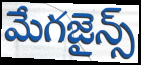
మేగజైన్స్